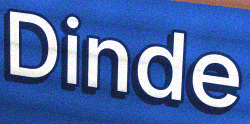
Dinde